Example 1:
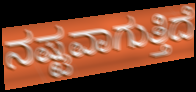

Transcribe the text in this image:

ನಷ್ಟವಾಗುತ್ತಿದೆ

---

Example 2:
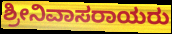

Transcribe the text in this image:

ಶ್ರೀನಿವಾಸರಾಯರು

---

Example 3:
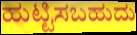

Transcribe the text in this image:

ಹುಟ್ಟಿಸಬಹುದು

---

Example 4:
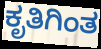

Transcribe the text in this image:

ಕೃತಿಗಿಂತ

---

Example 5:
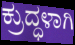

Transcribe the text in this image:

ಕ್ರುದ್ಧಳಾಗಿ